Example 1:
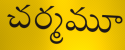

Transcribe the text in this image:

చర్మమూ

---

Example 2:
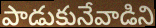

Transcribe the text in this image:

పాడుకునేవాడిని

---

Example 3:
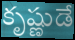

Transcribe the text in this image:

కృష్ణుడే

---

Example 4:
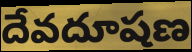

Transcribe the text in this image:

దేవదూషణ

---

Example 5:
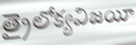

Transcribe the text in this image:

త్రైలోక్యవిజయీ